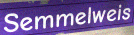
Semmelweis